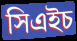
সিএইচ